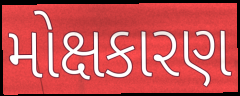
મોક્ષકારણ